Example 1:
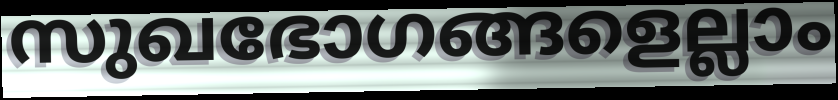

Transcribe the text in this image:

സുഖഭോഗങ്ങളെല്ലാം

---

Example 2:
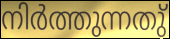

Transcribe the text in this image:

നിർത്തുന്നതു്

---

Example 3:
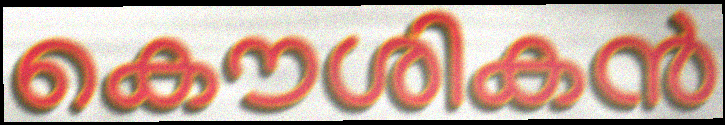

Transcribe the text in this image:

കൌശികൻ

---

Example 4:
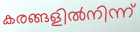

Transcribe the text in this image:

കരങ്ങളിൽനിന്ന്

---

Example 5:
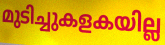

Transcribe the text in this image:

മുടിച്ചുകളകയില്ല